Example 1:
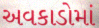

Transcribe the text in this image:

અવકાડોમાં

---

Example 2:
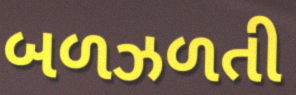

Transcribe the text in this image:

બળઝળતી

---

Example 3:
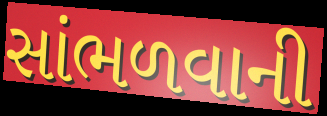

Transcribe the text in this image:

સાંભળવાની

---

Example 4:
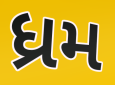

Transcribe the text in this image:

ધ્રમ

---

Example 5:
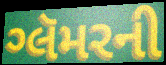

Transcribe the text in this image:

ગ્લૅમરની